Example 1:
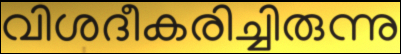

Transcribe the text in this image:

വിശദീകരിച്ചിരുന്നു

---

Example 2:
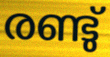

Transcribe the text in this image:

രണ്ടു്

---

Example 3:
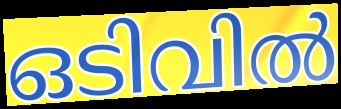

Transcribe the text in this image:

ഒടിവിൽ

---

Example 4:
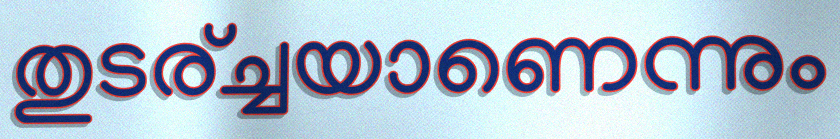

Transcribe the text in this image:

തുടര്ച്ചയാണെന്നും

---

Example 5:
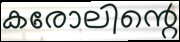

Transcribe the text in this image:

കരോലിന്റെ